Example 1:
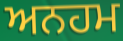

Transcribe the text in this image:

ਅਨਹਮ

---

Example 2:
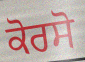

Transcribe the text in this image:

ਕੋਰਸੋ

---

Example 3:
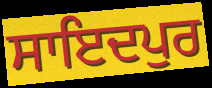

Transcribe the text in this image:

ਸਾਇਦਪੁਰ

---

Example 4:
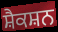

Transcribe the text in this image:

ਸ਼ੈਕਸ਼ਨ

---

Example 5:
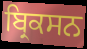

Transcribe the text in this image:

ਬ੍ਰਿਕਸਨ